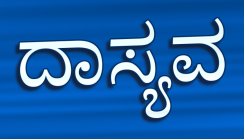
ದಾಸ್ಯವ